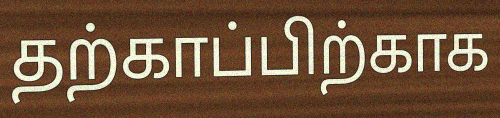
தற்காப்பிற்காக